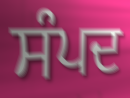
ਸੰਪਦ